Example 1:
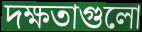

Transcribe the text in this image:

দক্ষতাগুলো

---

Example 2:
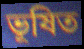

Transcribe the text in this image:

ভূষিত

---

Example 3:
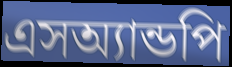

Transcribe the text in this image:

এসঅ্যান্ডপি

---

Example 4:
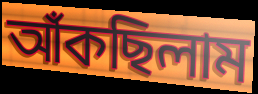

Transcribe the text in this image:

আঁকছিলাম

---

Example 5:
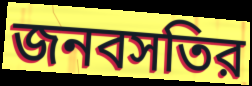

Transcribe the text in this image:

জনবসতির